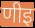
णीइ